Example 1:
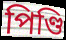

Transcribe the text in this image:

পিণ্ডি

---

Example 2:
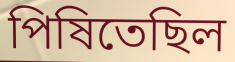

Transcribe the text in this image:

পিষিতেছিল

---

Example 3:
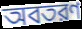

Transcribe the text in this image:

অবতরণ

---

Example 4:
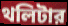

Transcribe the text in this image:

থলিটার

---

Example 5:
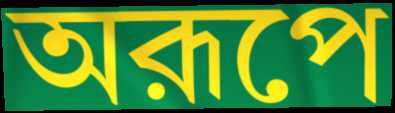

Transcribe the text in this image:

অরূপে